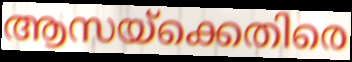
ആസയ്ക്കെതിരെ